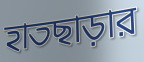
হাতছাড়ার